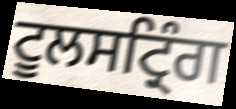
ਟੂਲਸਟ੍ਰਿੰਗ